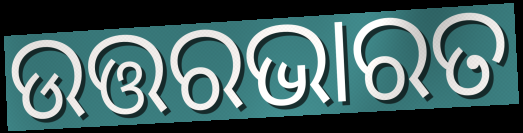
ଉତ୍ତରଭାରତ